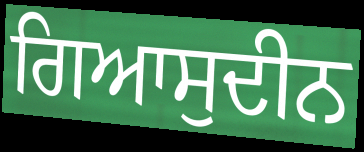
ਗਿਆਸੁਦੀਨ